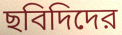
ছবিদিদের